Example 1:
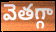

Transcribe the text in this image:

వెతగ్గా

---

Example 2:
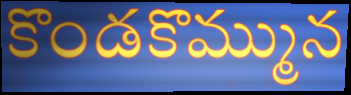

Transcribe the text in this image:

కొండకొమ్మున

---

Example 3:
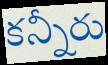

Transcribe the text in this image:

కన్నీరు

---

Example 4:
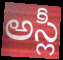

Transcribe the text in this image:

అస్లీ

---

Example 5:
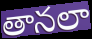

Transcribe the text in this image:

తానలా